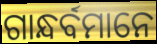
ଗାନ୍ଧର୍ବମାନେ